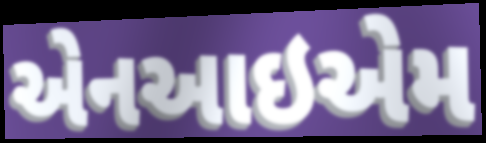
એનઆઇએમ